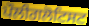
ਪੌਲੀਗਲੋਟਿਸਟ